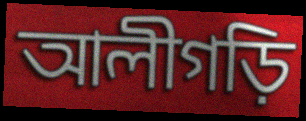
আলীগড়ি